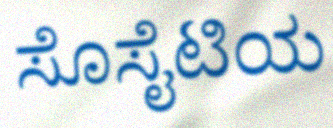
ಸೊಸೈಟಿಯ